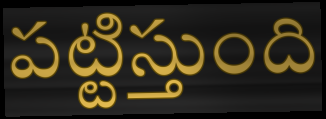
పట్టిస్తుంది